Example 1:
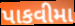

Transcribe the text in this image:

પાકવીમા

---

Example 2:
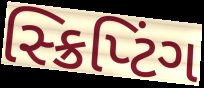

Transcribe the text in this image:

સ્ક્રિપ્ટિંગ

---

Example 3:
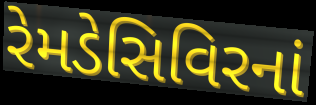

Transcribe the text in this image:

રેમડેસિવિરનાં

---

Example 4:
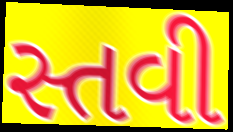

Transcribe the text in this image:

સ્તવી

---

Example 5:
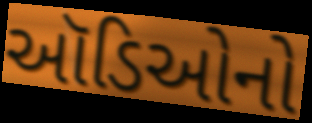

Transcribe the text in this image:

ઑડિઓનો